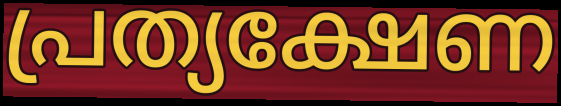
പ്രത്യക്ഷേണ